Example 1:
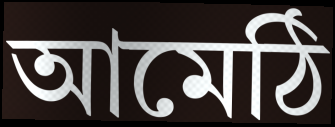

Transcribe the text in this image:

আমেঠি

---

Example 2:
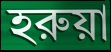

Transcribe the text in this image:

হরুয়া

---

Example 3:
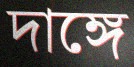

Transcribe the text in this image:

দাঙ্গে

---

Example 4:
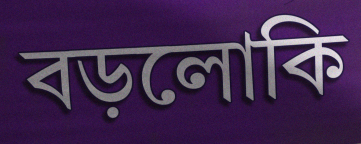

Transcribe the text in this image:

বড়লোকি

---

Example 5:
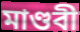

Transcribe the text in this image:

মাণ্ডবী